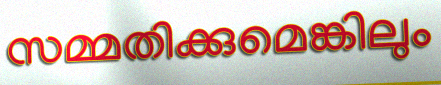
സമ്മതിക്കുമെങ്കിലും